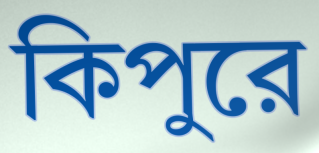
কিপুরে